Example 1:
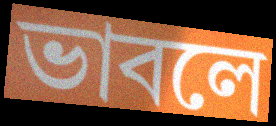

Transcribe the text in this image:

ভাবলে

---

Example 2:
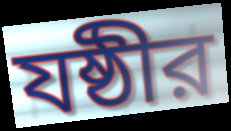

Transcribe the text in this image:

যষ্ঠীর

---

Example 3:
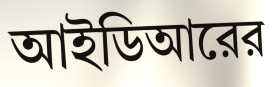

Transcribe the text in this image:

আইডিআরের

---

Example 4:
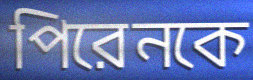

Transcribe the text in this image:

পিরেনকে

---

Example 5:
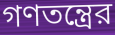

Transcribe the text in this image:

গণতন্ত্রের